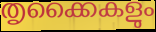
തൃക്കൈകളും